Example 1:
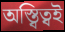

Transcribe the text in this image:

অস্ত্বিত্বই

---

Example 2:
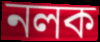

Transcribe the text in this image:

নলক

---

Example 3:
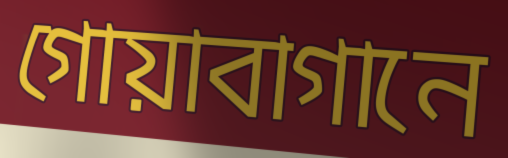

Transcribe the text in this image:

গোয়াবাগানে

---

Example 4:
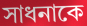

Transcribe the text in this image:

সাধনাকে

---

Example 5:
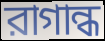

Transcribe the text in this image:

রাগান্ধ